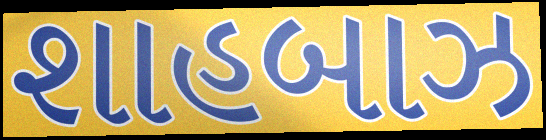
શાહબાઝ